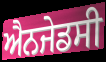
ਐਨਜੇਡਸੀ